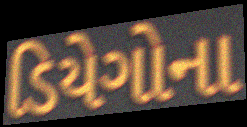
ડિયેગોના